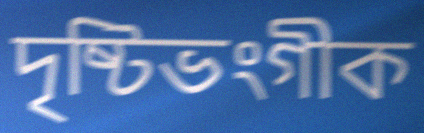
দৃষ্টিভংগীক